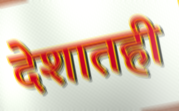
देशातही